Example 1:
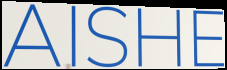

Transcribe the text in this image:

AISHE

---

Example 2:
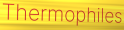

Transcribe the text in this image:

Thermophiles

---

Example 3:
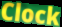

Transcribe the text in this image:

Clock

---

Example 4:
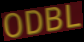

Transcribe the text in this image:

ODBL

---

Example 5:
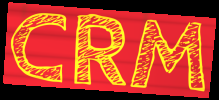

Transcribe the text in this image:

CRM